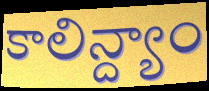
కాలిన్ద్యాం